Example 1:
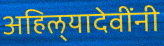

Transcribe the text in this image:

अहिल्यादेवींनी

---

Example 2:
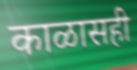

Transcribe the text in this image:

काळासही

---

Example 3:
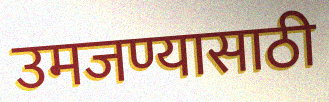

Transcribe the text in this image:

उमजण्यासाठी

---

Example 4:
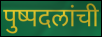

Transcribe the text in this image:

पुष्पदलांची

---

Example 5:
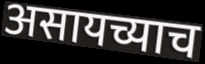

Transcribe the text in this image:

असायच्याच